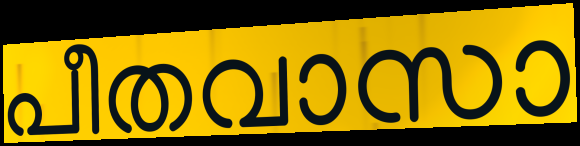
പീതവാസാ